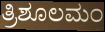
ತ್ರಿಶೂಲಮಂ